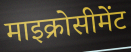
माइक्रोसीमेंट